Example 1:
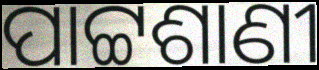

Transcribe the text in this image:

ପାଟ୍ଟଶାଣୀ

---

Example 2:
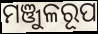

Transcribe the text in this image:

ମଞ୍ଜୁଳରୂପ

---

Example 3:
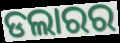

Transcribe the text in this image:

ଡଲାରର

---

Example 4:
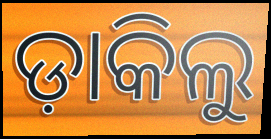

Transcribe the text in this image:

ଡ଼ାକିଲୁ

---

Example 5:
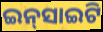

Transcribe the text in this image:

ଇନ୍‌ସାଇଟି